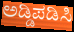
ಅಡ್ಡಿಪಡಿಸಿ